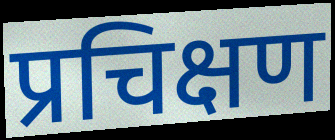
प्रचिक्षण